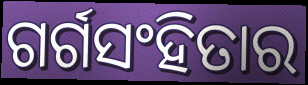
ଗର୍ଗସଂହିତାର